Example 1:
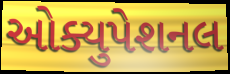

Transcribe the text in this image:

ઓક્યુપેશનલ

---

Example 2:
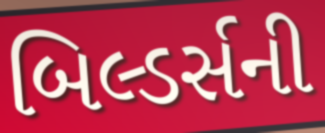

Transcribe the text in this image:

બિલ્ડર્સની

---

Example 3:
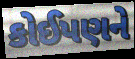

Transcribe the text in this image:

કોઈપણને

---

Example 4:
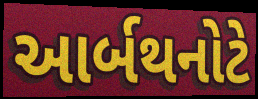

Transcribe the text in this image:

આર્બથનોટે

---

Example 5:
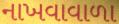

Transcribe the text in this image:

નાખવાવાળા